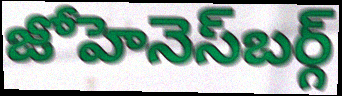
జోహెనెస్‍బర్గ్